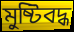
মুষ্টিবদ্ধ